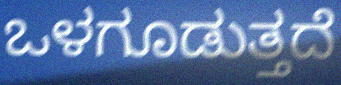
ಒಳಗೂಡುತ್ತದೆ